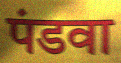
पंडवा